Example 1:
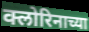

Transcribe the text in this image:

क्लोरिनाच्या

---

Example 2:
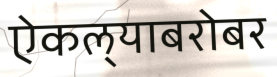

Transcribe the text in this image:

ऐकल्याबरोबर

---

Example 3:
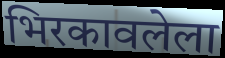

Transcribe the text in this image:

भिरकावलेला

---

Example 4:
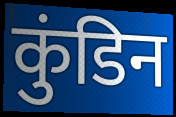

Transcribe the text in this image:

कुंडिन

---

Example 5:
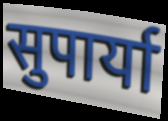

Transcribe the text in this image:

सुपार्या